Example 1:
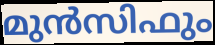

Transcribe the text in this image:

മുൻസിഫും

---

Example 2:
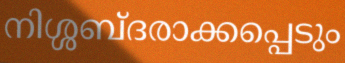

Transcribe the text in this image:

നിശ്ശബ്ദരാക്കപ്പെടും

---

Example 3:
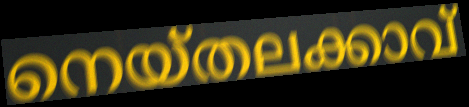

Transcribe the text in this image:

നെയ്തലക്കാവ്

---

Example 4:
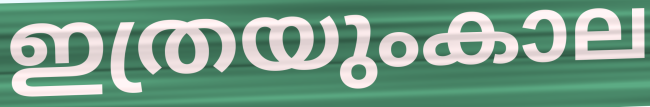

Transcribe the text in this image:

ഇത്രയുംകാല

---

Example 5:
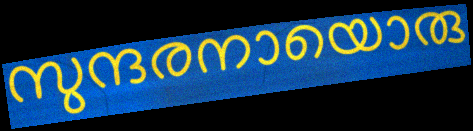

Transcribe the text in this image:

സുന്ദരനായൊരു